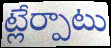
ట్లేర్పాటు